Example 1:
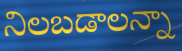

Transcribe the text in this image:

నిలబడాలన్నా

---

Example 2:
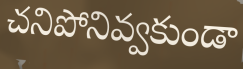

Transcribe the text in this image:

చనిపోనివ్వకుండా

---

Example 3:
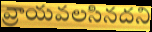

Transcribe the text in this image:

వ్రాయవలసినదని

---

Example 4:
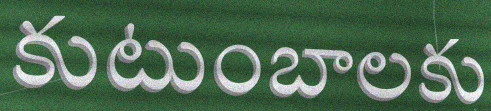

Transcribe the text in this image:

కుటుంబాలకు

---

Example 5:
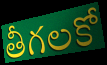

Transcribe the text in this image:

తీగలకో